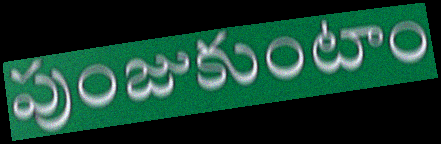
పుంజుకుంటాం